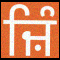
ਜ਼ਿੰ